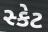
સ્કેટ